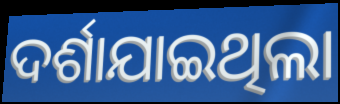
ଦର୍ଶାଯାଇଥିଲା